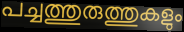
പച്ചത്തുരുത്തുകളും